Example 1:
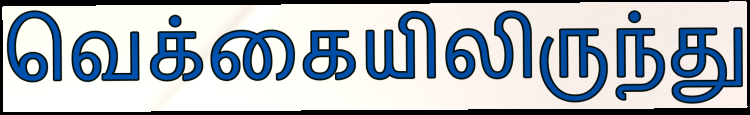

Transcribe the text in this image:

வெக்கையிலிருந்து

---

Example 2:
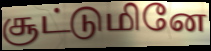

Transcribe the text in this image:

சூட்டுமினே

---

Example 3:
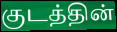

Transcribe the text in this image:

குடத்தின்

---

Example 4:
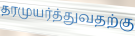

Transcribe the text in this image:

தரமுயர்த்துவதற்கு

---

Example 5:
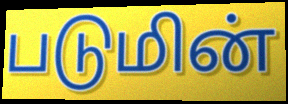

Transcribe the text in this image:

படுமின்